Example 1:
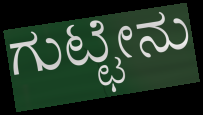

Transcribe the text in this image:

ಗುಟ್ಟೇನು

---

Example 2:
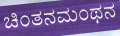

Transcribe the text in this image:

ಚಿಂತನಮಂಥನ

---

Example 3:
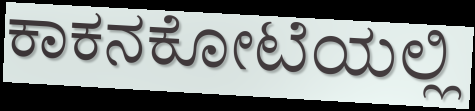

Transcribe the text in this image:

ಕಾಕನಕೋಟೆಯಲ್ಲಿ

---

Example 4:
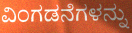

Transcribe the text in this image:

ವಿಂಗಡನೆಗಳನ್ನು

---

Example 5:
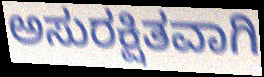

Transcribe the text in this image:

ಅಸುರಕ್ಷಿತವಾಗಿ